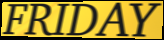
FRIDAY